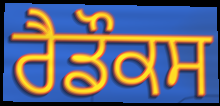
ਰੈਡੌਕਸ